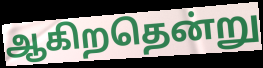
ஆகிறதென்று